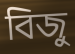
বিজু